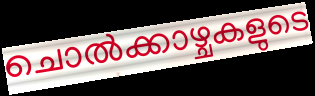
ചൊൽക്കാഴ്ചകളുടെ